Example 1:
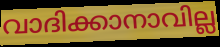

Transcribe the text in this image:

വാദിക്കാനാവില്ല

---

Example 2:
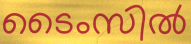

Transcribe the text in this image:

ടൈംസിൽ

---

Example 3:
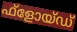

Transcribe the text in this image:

ഫ്ളോയ്ഡ്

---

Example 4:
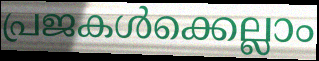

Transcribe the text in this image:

പ്രജകൾക്കെല്ലാം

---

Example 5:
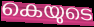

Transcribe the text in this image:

കെയുടെ